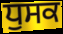
ਧੁਸਕ